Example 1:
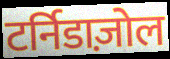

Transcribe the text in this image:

टर्निडाज़ोल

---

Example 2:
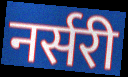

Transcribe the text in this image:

नर्सरी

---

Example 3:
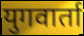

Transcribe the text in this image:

युगवार्ता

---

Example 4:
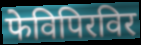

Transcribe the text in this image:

फेविपिरविर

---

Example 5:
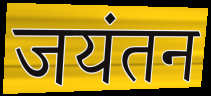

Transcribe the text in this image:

जयंतन